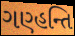
ગણ્હન્તિ